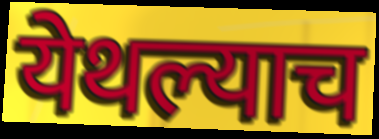
येथल्याच